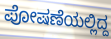
ಪೋಷಣೆಯಲ್ಲಿದ್ದ